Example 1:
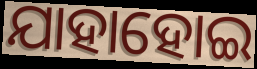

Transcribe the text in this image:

ଯାହାହୋଇ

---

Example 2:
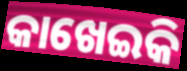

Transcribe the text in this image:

କାଖେଇକି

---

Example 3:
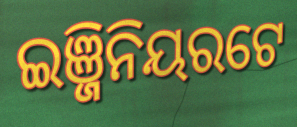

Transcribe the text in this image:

ଇଞ୍ଜିନିୟରଟେ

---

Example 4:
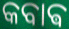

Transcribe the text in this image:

କବାଵ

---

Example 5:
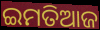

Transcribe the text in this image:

ଇମତିଆଜ